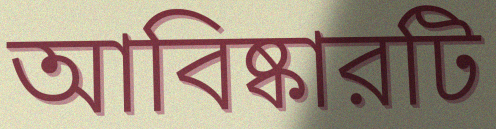
আবিষ্কারটি